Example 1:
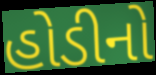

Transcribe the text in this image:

હોડીનો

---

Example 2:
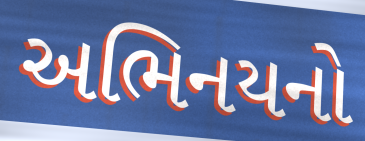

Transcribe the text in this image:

અભિનયનો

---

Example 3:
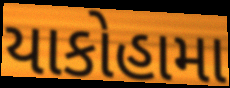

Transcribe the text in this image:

યાકોહામા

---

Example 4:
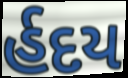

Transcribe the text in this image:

ર્હદય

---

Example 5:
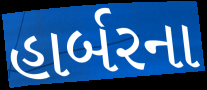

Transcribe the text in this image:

હાર્બરના